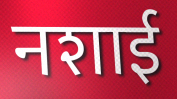
नशाई